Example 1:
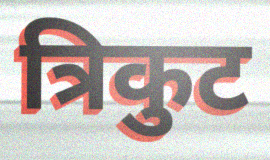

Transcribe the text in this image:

त्रिकुट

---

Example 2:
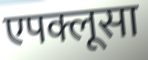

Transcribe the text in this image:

एपक्लूसा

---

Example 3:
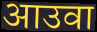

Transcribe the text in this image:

आउवा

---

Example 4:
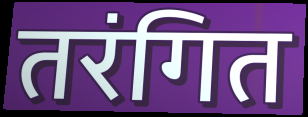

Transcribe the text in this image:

तरंगित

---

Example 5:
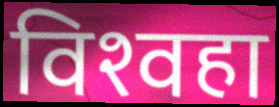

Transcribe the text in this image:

विश्वहा